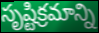
సృష్టిక్రమాన్ని